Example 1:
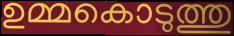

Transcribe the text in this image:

ഉമ്മകൊടുത്തു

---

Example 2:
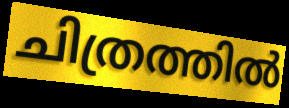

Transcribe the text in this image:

ചിത്രത്തിൽ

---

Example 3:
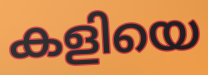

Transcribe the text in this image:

കളിയെ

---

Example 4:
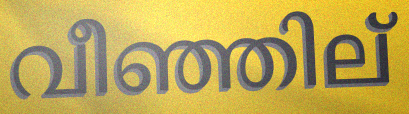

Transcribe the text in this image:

വീഞ്ഞില്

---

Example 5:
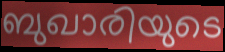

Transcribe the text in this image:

ബുഖാരിയുടെ